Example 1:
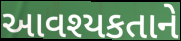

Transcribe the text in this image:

આવશ્યકતાને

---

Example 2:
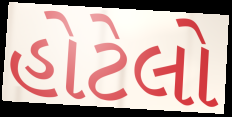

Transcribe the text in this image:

હોટેલો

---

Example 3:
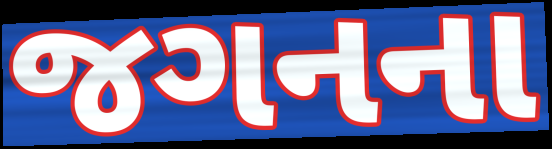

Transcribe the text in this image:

જગનના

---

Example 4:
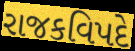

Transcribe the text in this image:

રાજકવિપદે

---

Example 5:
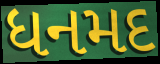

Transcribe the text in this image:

ધનમદ